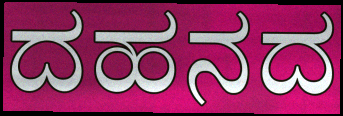
ದಹನದ